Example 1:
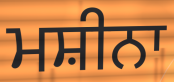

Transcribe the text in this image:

ਮਸ਼ੀਨਾ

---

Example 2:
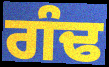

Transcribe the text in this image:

ਗੰਢ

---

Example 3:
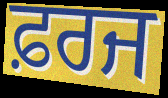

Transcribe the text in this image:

ਫ਼ਰਜ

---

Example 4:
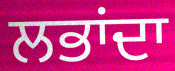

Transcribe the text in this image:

ਲਭਾਂਦਾ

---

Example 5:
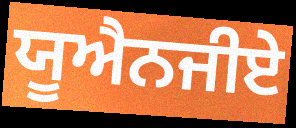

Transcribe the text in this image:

ਯੂਐਨਜੀਏ